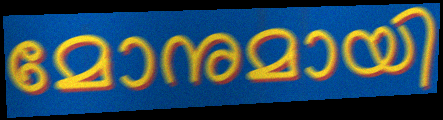
മോനുമായി